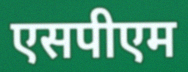
एसपीएम